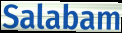
Salabam